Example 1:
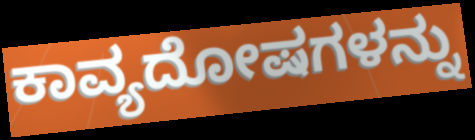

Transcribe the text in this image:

ಕಾವ್ಯದೋಷಗಳನ್ನು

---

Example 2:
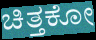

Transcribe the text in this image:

ಚಿತ್ತಕೋ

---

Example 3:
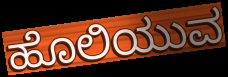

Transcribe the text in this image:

ಹೊಲಿಯುವ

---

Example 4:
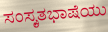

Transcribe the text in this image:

ಸಂಸ್ಕೃತಭಾಷೆಯು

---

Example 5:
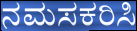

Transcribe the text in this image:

ನಮಸಕರಿಸಿ